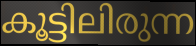
കൂട്ടിലിരുന്ന